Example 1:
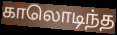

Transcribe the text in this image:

காலொடிந்த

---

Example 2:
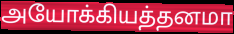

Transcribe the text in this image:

அயோக்கியத்தனமா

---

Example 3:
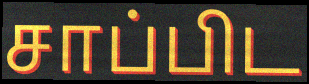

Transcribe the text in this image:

சாப்பிட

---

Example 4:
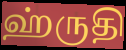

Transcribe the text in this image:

ஹ்ருதி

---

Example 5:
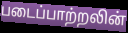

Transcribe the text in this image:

படைப்பாற்றலின்